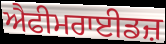
ਐਫੀਮਰਾਈਡਜ਼